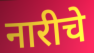
नारीचे